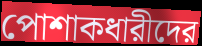
পোশাকধারীদের